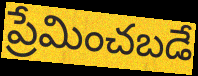
ప్రేమించబడే